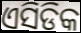
ଏସିଡିକ